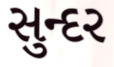
સુન્દર